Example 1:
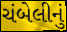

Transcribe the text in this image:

ચંબેલીનું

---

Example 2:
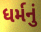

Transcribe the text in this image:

ધર્મનું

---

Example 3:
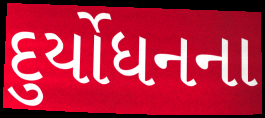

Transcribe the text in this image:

દુર્યોધનના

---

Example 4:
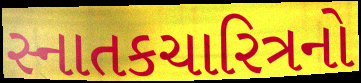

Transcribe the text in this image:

સ્નાતકચારિત્રનો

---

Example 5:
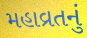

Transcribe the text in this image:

મહાવ્રતનું